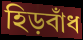
হিড়বাঁধ